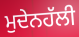
ਮੁਦੇਨਹੱਲੀ